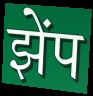
झेंप